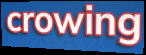
crowing